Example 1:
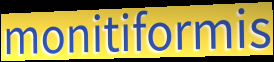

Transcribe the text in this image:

monitiformis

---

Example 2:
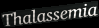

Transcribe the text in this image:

Thalassemia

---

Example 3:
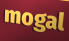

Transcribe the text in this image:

mogal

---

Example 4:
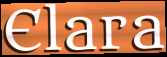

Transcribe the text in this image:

Elara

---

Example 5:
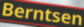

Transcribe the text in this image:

Berntsen